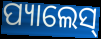
ପ୍ୟାଲେସ୍